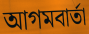
আগমবার্তা